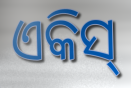
ଏକିସ୍